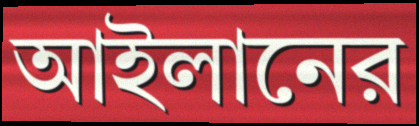
আইলানের